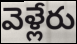
వెళ్లేరు